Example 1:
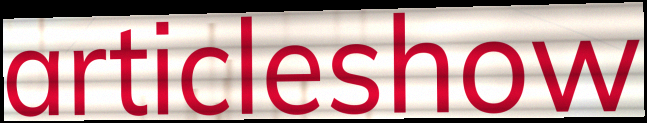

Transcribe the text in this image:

articleshow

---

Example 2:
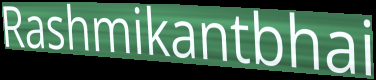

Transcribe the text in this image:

Rashmikantbhai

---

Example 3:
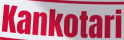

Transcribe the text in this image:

Kankotari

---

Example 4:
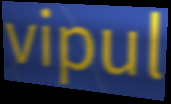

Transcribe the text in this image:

vipul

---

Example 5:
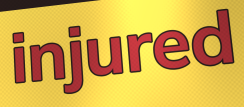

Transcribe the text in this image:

injured